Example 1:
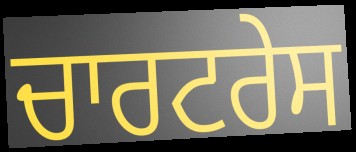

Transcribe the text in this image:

ਚਾਰਟਰੇਸ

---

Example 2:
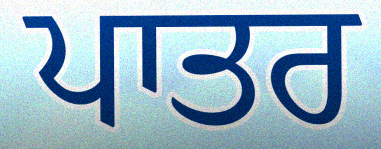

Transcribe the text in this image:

ਪਾਤਰ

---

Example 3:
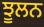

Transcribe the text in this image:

ਝੂਲਨ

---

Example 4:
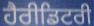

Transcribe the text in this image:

ਹੈਰੀਡਿਟਰੀ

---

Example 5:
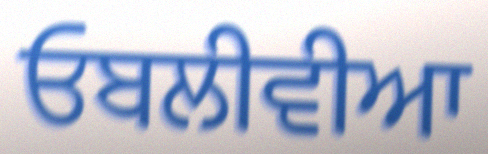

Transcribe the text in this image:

ਓਬਲੀਵੀਆ